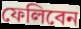
ফেলিবেন